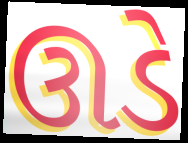
ઊડે